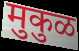
मुकुळ